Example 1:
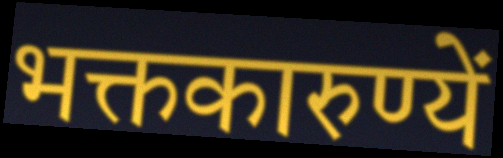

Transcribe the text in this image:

भक्तकारुण्यें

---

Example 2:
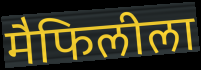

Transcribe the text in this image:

मैफिलीला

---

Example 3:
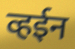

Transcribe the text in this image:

व्हईन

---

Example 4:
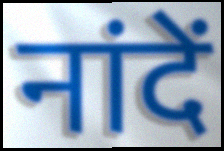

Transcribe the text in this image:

नांदें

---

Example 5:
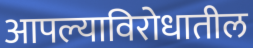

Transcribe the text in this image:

आपल्याविरोधातील